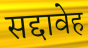
सद्दावेह